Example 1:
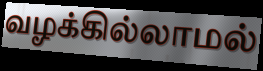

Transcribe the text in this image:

வழக்கில்லாமல்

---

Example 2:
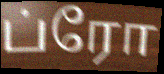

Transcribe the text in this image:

ப்ரோ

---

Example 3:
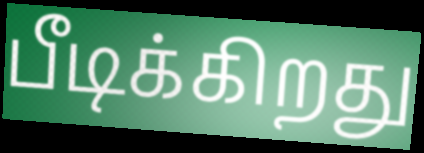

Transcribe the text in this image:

பீடிக்கிறது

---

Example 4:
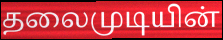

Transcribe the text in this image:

தலைமுடியின்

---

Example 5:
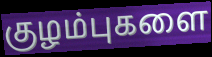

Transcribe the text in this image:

குழம்புகளை